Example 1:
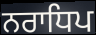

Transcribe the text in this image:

ਨਰਾਧਿਪ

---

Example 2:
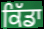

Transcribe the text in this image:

ਕਿੱਡਾ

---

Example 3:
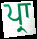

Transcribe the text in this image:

ਪ੍ਰਾ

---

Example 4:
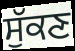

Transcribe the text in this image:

ਸੁੱਕਣ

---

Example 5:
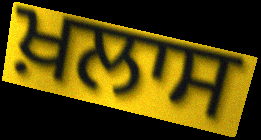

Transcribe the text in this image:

ਖ਼ਲਾਸ